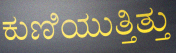
ಕುಣಿಯುತ್ತಿತ್ತು